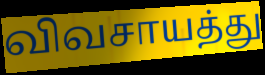
விவசாயத்து